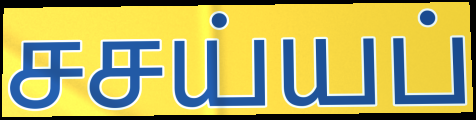
சசய்யப்